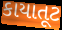
કાયાતૂટ